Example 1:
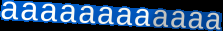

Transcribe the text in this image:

aaaaaaaaaaaa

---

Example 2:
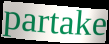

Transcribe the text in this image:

partake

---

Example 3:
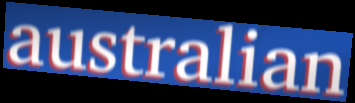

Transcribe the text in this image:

australian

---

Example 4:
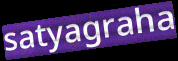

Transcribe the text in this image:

satyagraha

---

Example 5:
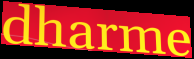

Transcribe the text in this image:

dharme